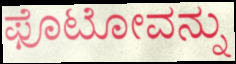
ಫೊಟೋವನ್ನು